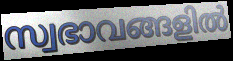
സ്വഭാവങ്ങളിൽ